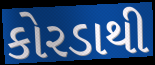
કોરડાથી